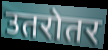
उतरोतर